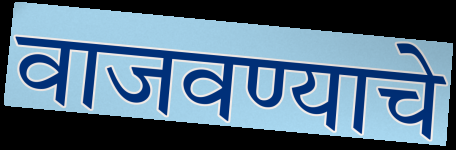
वाजवण्याचे